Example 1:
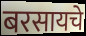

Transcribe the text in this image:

बरसायचे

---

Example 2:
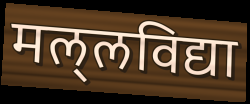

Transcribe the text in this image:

मल्लविद्या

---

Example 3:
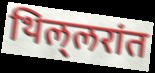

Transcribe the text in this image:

थिल्लरांत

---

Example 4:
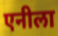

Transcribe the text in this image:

एनीला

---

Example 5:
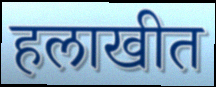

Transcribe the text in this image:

हलाखीत